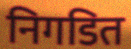
निगडित